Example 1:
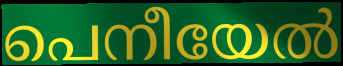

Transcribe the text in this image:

പെനീയേൽ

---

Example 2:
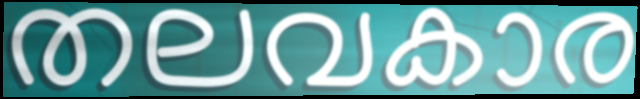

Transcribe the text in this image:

തലവകാര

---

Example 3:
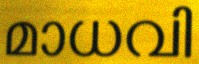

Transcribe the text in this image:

മാധവി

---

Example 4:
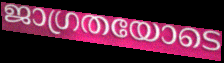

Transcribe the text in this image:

ജാഗ്രതയോടെ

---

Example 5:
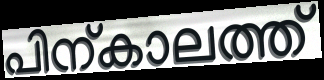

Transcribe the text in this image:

പിന്കാലത്ത്